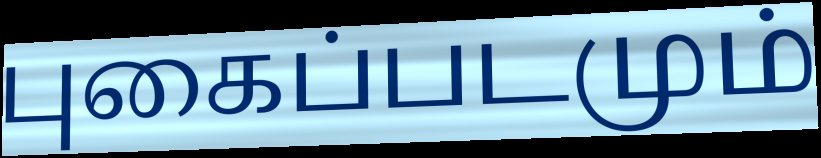
புகைப்படமும்